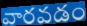
వారవడం